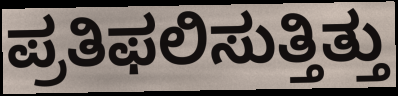
ಪ್ರತಿಫಲಿಸುತ್ತಿತ್ತು